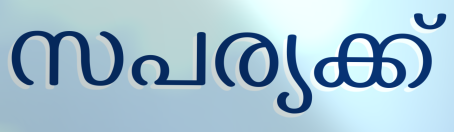
സപര്യക്ക്